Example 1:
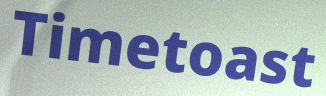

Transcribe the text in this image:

Timetoast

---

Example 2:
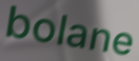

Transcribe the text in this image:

bolane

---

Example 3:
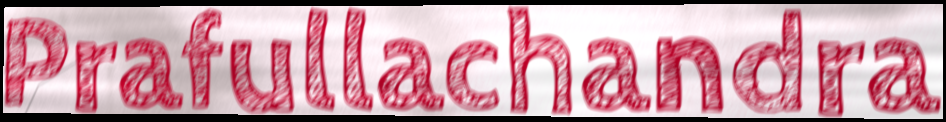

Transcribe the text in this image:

Prafullachandra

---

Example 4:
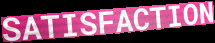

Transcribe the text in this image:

SATISFACTION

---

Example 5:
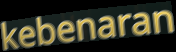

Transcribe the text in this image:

kebenaran